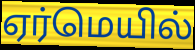
ஏர்மெயில்